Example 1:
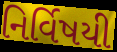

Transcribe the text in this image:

નિર્વિષયી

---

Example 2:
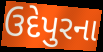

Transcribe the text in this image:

ઉદેપુરના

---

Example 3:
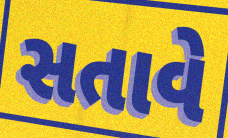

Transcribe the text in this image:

સતાવે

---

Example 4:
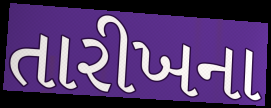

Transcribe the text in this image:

તારીખના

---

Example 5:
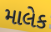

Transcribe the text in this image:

માલેક